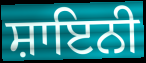
ਸ਼ਾਇਨੀ